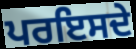
ਪਰਇਸਦੇ